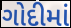
ગોદીમાં